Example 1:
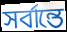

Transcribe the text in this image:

সর্বান্তে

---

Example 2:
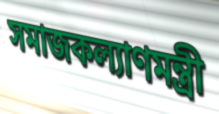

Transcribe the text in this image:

সমাজকল্যাণমন্ত্রী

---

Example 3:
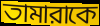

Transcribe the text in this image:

তামারাকে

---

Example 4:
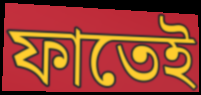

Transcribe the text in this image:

ফাতেই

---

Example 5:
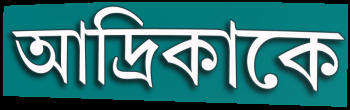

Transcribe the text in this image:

আদ্রিকাকে